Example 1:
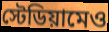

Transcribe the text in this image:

স্টেডিয়ামেও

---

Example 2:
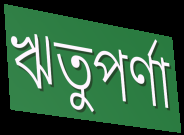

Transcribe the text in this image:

ঋতুপর্ণা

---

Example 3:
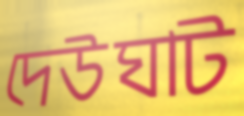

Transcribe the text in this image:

দেউঘাট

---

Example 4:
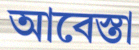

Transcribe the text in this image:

আবেস্তা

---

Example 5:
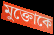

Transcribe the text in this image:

মুক্তোকে